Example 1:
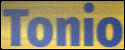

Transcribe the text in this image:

Tonio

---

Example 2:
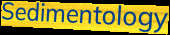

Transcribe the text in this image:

Sedimentology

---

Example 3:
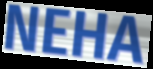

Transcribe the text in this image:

NEHA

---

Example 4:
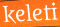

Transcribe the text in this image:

keleti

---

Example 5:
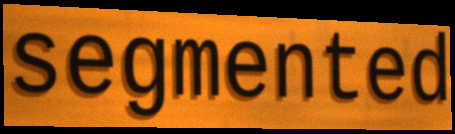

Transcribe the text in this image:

segmented